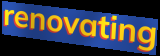
renovating